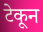
टेकून